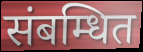
संबम्धित